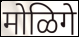
मोळिगे